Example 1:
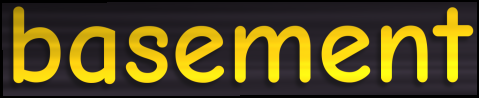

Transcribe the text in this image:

basement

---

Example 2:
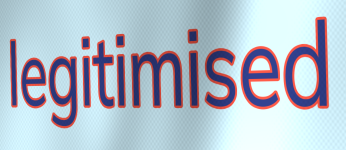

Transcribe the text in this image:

legitimised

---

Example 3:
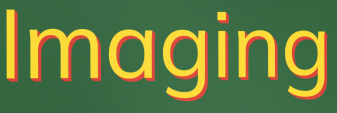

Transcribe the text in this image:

Imaging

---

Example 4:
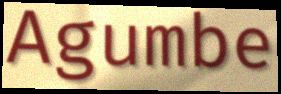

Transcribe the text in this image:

Agumbe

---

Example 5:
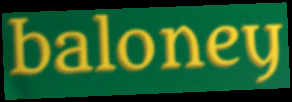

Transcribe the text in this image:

baloney